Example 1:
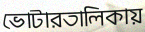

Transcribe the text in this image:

ভোটারতালিকায়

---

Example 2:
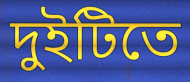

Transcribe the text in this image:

দুইটিতে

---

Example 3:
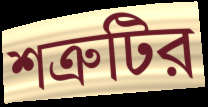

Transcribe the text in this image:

শত্রুটির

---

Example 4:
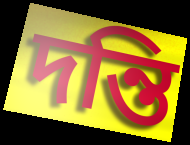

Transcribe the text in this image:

দন্তি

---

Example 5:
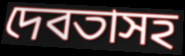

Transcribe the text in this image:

দেবতাসহ